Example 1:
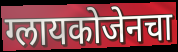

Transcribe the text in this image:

ग्लायकोजेनचा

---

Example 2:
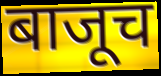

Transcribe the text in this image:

बाजूच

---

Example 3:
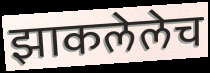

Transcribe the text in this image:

झाकलेलेच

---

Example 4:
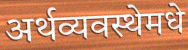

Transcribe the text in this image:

अर्थव्यवस्थेमधे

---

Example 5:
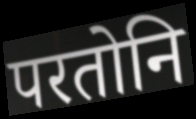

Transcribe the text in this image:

परतोनि